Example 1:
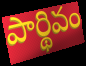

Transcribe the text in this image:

పార్థివం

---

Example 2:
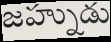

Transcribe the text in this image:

జహ్నుడు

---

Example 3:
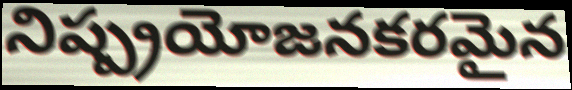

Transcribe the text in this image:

నిష్ప్రయోజనకరమైన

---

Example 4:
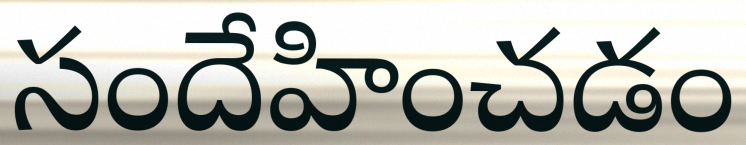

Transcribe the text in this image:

సందేహించడం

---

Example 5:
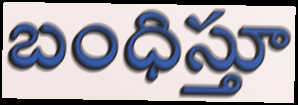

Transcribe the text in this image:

బంధిస్తూ